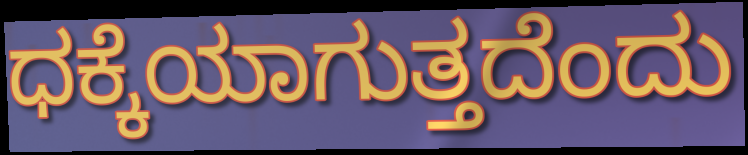
ಧಕ್ಕೆಯಾಗುತ್ತದೆಂದು